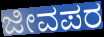
ಜೀವಪರ